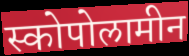
स्कोपोलामीन